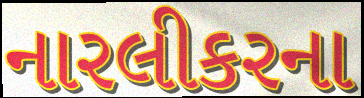
નારલીકરના